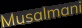
Musalmani